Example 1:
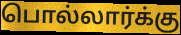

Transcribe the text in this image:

பொல்லார்க்கு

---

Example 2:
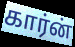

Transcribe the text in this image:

கார்ன்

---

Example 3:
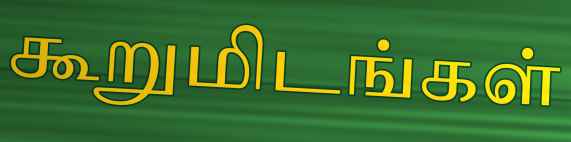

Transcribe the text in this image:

கூறுமிடங்கள்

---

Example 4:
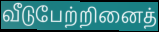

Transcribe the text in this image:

வீடுபேற்றினைத்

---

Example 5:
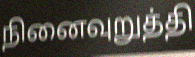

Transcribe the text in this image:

நினைவுறுத்தி